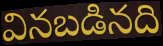
వినబడినది